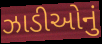
ઝાડીઓનું